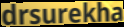
drsurekha